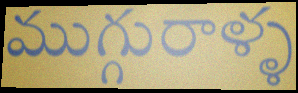
ముగ్గురాళ్ళ